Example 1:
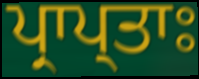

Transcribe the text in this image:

ਪ੍ਰਾਪ੍ਤਾਃ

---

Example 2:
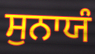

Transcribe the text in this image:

ਸੁਨਾਯੰ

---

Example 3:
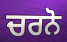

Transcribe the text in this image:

ਚਰਨੋ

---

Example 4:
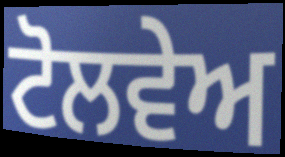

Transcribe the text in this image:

ਟੋਲਵੇਅ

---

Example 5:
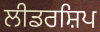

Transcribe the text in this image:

ਲੀਡਰਸ਼ਿਪ